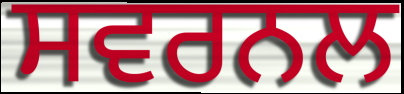
ਸਵਰਨਲ